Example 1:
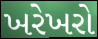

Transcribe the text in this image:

ખરેખરો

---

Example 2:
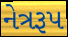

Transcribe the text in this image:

નેત્રરૂપ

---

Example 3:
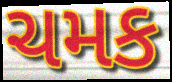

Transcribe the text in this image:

ચમક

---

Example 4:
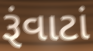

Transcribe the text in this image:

રૂંવાટાં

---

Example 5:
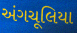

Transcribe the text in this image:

અંગચૂલિયા